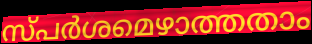
സ്പർശമെഴാത്തതാം